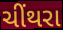
ચીંથરા